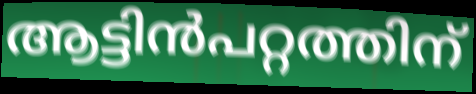
ആട്ടിൻപറ്റത്തിന്